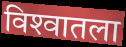
विश्‍वातला